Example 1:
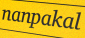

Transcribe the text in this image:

nanpakal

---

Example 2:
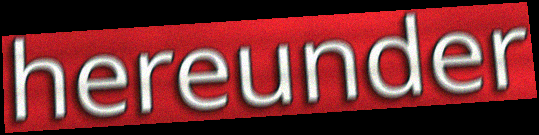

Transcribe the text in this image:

hereunder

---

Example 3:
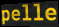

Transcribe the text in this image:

pelle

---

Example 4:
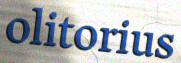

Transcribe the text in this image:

olitorius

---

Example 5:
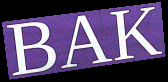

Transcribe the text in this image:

BAK